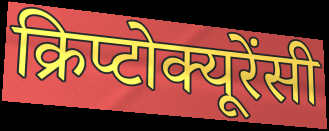
क्रिप्टोक्यूरेंसी